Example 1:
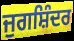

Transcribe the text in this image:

ਜੁਗਸ਼ਿੰਦਰ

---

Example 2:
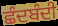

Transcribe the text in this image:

ਛੰਦਬੰਦੀ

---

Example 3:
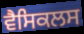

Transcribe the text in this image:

ਵੈਸਿਕਲਸ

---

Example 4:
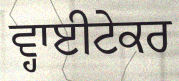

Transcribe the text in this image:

ਵ੍ਹਾਈਟੇਕਰ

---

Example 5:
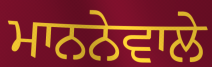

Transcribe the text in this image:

ਮਾਨਨੇਵਾਲੇ